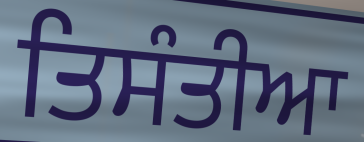
ਤਿਸੰਤੀਆ